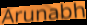
Arunabh